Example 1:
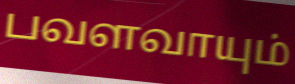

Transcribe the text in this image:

பவளவாயும்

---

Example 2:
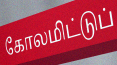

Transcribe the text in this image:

கோலமிட்டுப்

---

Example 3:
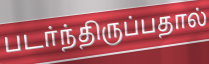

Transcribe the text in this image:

படர்ந்திருப்பதால்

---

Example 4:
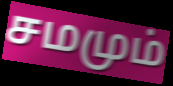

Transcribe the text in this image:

சமமும்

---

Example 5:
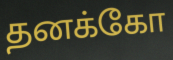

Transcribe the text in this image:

தனக்கோ